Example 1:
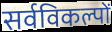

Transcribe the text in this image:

सर्वविकल्पों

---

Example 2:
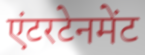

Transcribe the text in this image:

एंटरटेनमेंट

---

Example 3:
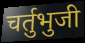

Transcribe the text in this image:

चर्तुभुजी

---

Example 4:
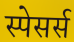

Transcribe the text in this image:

स्पेसर्स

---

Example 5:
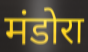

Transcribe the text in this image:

मंडोरा